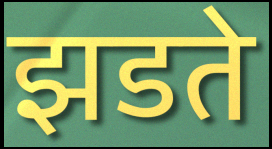
झडते